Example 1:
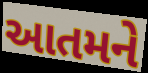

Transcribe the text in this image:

આતમને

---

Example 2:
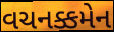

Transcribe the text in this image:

વચનક્કમેન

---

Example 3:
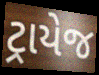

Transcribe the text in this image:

ટ્રાયેજ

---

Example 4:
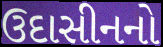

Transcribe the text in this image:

ઉદાસીનનો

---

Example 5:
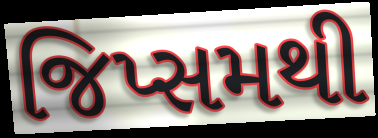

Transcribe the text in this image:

જિપ્સમથી